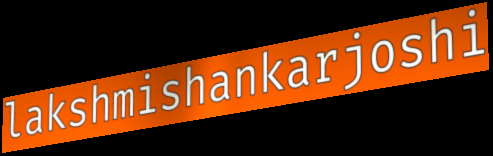
lakshmishankarjoshi